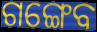
ଗଙ୍ଗେବ